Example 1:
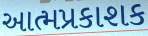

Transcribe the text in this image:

આત્મપ્રકાશક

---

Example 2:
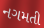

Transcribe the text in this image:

નગમતી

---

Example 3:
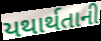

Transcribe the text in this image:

યથાર્થતાની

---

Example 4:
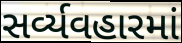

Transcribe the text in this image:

સર્વ્યવહારમાં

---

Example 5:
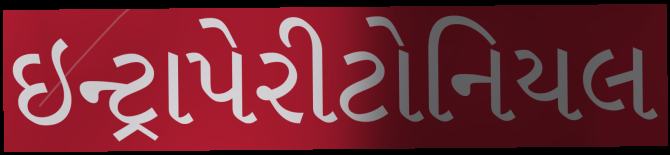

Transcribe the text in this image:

ઇન્ટ્રાપેરીટોનિયલ